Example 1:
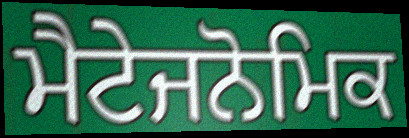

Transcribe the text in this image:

ਮੈਟੇਜਨੋਮਿਕ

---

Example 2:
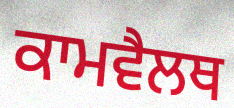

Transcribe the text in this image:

ਕਾਮਵੈਲਥ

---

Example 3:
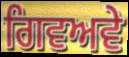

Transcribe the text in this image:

ਗਿਵਅਵੇ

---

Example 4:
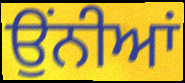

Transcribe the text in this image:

ਉੰਨੀਆਂ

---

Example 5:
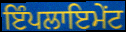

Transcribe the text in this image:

ਇੰਪਲਾਇਮੇਂਟ